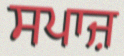
ਸਪਾਜ਼